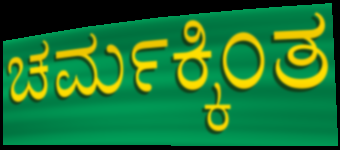
ಚರ್ಮಕ್ಕಿಂತ